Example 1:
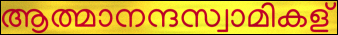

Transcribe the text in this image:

ആത്മാനന്ദസ്വാമികള്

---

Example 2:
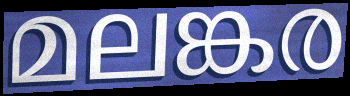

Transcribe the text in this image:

മലങ്കര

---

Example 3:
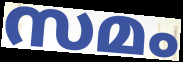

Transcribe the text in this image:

സമം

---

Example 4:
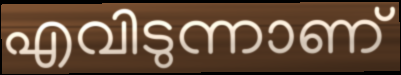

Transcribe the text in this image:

എവിടുന്നാണ്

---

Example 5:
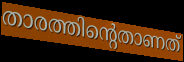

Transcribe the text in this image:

താരത്തിന്റെതാണത്